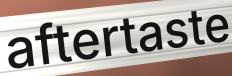
aftertaste